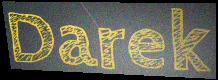
Darek